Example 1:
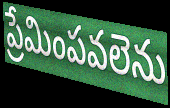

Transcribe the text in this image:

ప్రేమింపవలెను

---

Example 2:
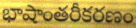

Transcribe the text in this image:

భాషాంతరీకరణం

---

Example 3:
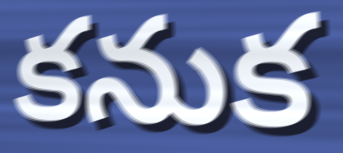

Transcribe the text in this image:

కనుక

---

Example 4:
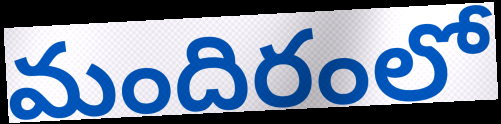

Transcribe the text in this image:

మందిరంలో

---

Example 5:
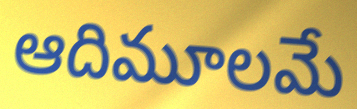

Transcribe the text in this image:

ఆదిమూలమే